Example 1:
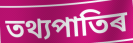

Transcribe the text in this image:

তথ্যপাতিৰ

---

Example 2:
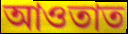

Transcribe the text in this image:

আওতাত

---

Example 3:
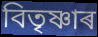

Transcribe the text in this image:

বিতৃষ্ণাৰ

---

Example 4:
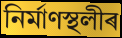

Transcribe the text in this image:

নিৰ্মাণস্থলীৰ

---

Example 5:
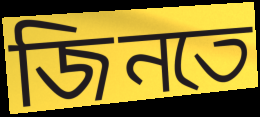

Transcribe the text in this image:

জিনতে